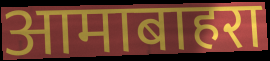
आमाबाहरा